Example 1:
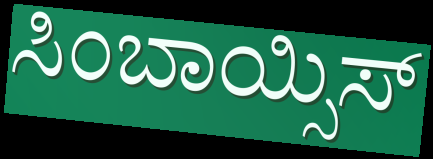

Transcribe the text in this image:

ಸಿಂಬಾಯ್ಸಿಸ್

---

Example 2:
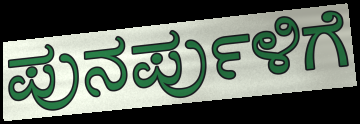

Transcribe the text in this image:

ಪುನರ್ಪುಳಿಗೆ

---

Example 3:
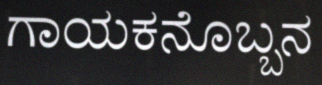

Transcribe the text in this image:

ಗಾಯಕನೊಬ್ಬನ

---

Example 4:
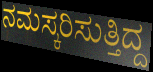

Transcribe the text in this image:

ನಮಸ್ಕರಿಸುತ್ತಿದ್ದ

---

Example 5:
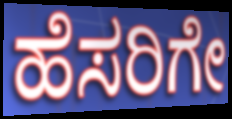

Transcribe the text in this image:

ಹೆಸರಿಗೇ